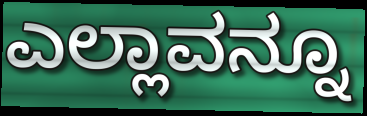
ಎಲ್ಲಾವನ್ನೂ